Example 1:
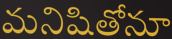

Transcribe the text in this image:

మనిషితోనూ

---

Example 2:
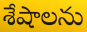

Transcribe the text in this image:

శేషాలను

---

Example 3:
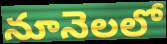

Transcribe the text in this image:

నూనెలలో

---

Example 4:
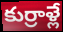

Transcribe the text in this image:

కుర్రాళ్లే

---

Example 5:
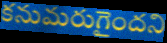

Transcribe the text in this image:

కనుమరుగైందని